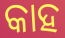
କାହ